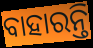
ବାହାରନ୍ତି